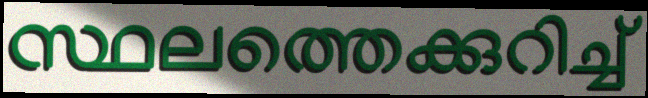
സ്ഥലത്തെക്കുറിച്ച്